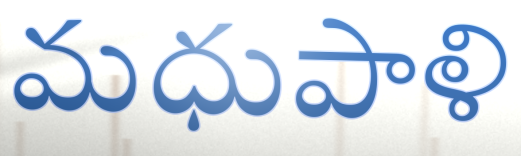
మధుపాళి